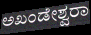
ಅಖಂಡೇಶ್ವರಾ